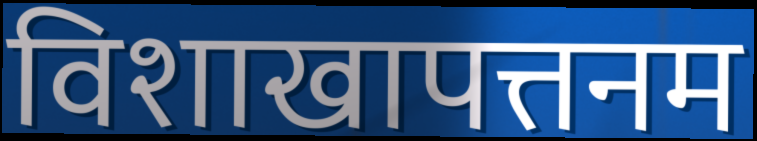
विशाखापत्तनम